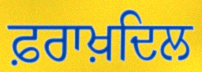
ਫ਼ਰਾਖ਼ਦਿਲ